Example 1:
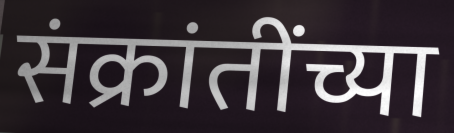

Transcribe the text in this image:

संक्रांतींच्या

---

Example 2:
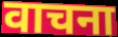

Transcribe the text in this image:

वाचना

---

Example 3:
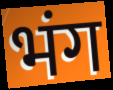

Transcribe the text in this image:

भंग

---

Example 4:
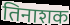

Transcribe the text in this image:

तिनाशक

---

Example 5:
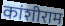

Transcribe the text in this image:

कांशीराम